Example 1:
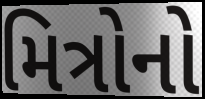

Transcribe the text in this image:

મિત્રોનો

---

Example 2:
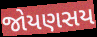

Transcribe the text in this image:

જોયણસય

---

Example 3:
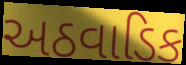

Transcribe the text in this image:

અઠવાડિક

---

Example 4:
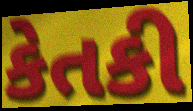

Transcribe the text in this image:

કેતકી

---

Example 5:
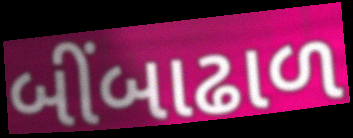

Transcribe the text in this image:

બીંબાઢાળ